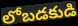
లోబడకుడి